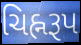
ચિહ્નરૂપ